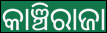
କାଞ୍ଚିରାଜା